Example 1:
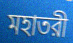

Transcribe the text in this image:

মহাতরী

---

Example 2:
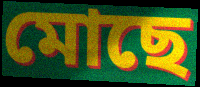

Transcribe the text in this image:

মোছে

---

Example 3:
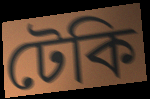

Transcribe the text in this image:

টেকি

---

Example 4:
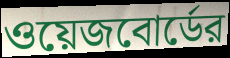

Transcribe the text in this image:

ওয়েজবোর্ডের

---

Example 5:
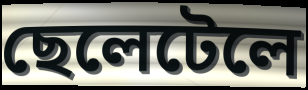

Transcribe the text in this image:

ছেলেটেলে